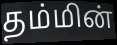
தம்மின்